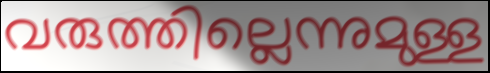
വരുത്തില്ലെന്നുമുള്ള